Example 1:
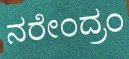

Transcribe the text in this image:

ನರೇಂದ್ರಂ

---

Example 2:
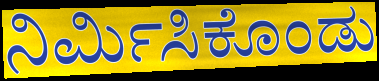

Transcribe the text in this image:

ನಿರ್ಮಿಸಿಕೊಂಡು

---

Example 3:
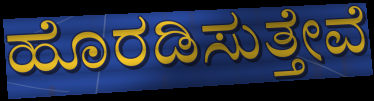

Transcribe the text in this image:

ಹೊರಡಿಸುತ್ತೇವೆ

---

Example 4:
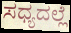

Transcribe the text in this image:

ಸಧ್ಯದಲ್ಲೆ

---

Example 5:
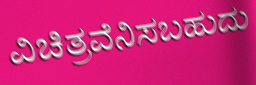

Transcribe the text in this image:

ವಿಚಿತ್ರವೆನಿಸಬಹುದು